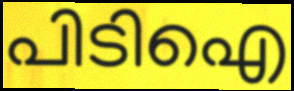
പിടിഐ